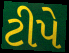
ટીપે